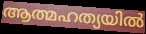
ആത്മഹത്യയിൽ